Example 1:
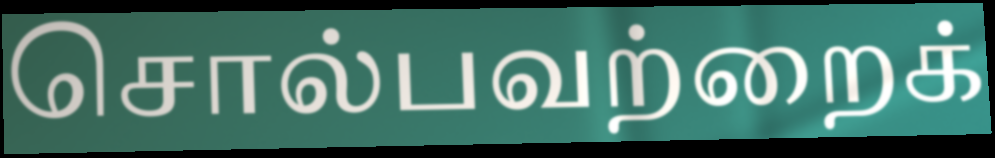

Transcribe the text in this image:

சொல்பவற்றைக்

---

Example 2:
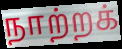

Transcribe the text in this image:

நாற்றக்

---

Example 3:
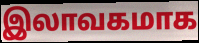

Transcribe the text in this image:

இலாவகமாக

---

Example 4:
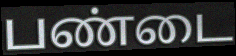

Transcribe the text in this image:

பண்டை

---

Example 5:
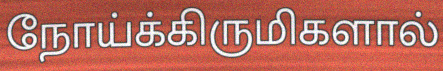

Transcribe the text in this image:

நோய்க்கிருமிகளால்